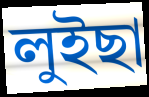
লুইছা